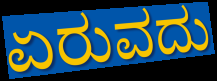
ಏರುವದು